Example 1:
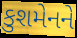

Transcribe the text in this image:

કુશમેનને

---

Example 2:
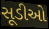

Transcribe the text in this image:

સૂડીઓ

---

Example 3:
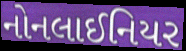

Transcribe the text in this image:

નોનલાઈનિયર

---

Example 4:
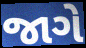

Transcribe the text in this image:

જાગે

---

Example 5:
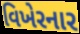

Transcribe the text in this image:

વિખેરનાર